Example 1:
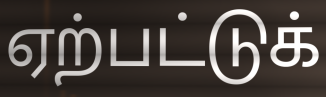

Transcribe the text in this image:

ஏற்பட்டுக்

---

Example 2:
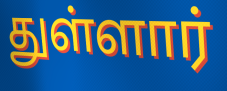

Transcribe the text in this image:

துள்ளார்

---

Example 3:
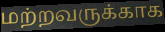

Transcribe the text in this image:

மற்றவருக்காக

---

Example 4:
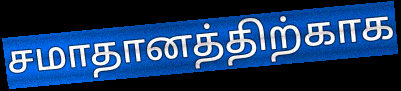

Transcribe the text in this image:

சமாதானத்திற்காக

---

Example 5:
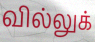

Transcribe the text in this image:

வில்லுக்